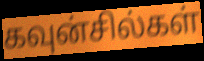
கவுன்சில்கள்